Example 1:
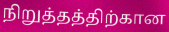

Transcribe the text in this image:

நிறுத்தத்திற்கான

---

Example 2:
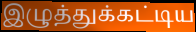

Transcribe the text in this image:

இழுத்துக்கட்டிய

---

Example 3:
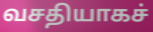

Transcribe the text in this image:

வசதியாகச்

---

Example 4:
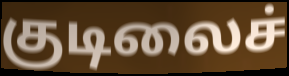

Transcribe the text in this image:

குடிலைச்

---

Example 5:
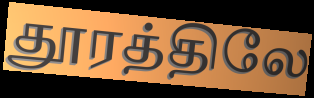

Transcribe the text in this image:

தூரத்திலே